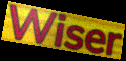
Wiser